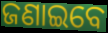
ଜଣାଇବେ